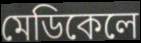
মেডিকেলে